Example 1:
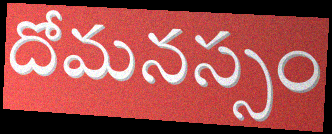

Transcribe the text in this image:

దోమనస్సం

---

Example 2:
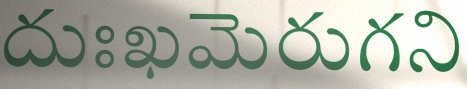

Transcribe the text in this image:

దుఃఖమెరుగని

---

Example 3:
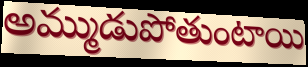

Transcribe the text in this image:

అమ్ముడుపోతుంటాయి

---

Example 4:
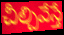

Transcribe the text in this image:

చీల్చివేస్తే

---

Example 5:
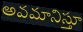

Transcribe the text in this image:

అవమానిస్తూ